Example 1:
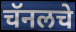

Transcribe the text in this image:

चॅनलचे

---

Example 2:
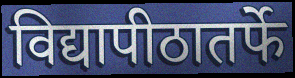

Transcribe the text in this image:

विद्यापीठातर्फे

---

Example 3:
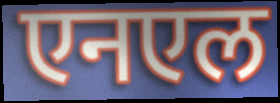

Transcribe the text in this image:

एनएल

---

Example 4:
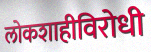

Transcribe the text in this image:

लोकशाहीविरोधी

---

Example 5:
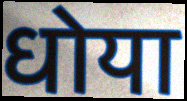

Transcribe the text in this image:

धोया